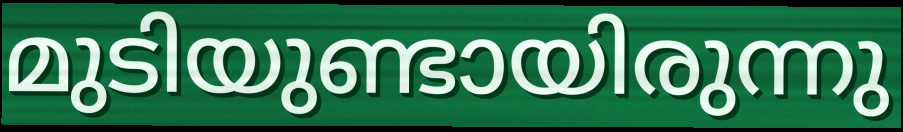
മുടിയുണ്ടായിരുന്നു